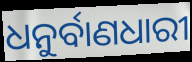
ଧନୁର୍ବାଣଧାରୀ